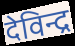
देविन्द्र